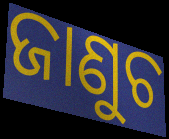
ଜାଣୁଚ